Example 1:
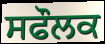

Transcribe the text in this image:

ਸਫੌਲਕ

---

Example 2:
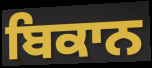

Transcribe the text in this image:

ਬਿਕਾਨ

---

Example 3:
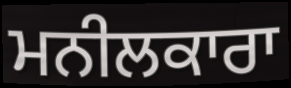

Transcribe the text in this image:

ਮਨੀਲਕਾਰਾ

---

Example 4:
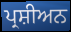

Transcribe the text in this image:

ਪ੍ਰਸ਼ੀਅਨ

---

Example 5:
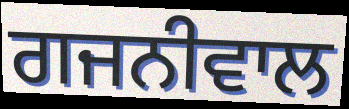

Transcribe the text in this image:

ਗਜਨੀਵਾਲ